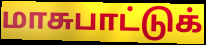
மாசுபாட்டுக்